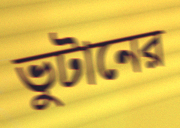
ভুটানের